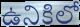
ఉనికిలో